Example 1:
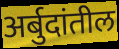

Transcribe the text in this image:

अर्बुदांतील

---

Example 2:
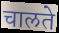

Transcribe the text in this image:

चालते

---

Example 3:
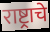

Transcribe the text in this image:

राष्ट्राचे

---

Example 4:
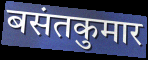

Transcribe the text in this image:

बसंतकुमार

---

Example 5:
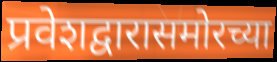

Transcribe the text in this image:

प्रवेशद्वारासमोरच्या